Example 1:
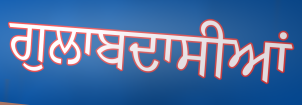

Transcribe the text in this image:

ਗੁਲਾਬਦਾਸੀਆਂ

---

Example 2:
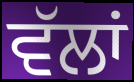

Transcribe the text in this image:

ਵੱਲਾਂ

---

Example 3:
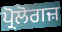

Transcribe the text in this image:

ਪ੍ਰੋਲੋਗਜ਼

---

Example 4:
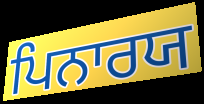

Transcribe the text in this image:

ਪਿਨਾਰਯ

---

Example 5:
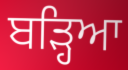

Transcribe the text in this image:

ਬੜ੍ਹਿਆ